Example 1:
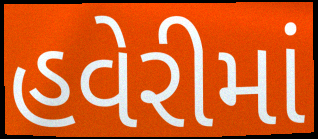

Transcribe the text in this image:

હવેરીમાં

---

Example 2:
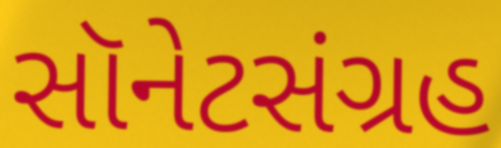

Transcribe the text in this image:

સૉનેટસંગ્રહ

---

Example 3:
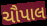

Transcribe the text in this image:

ચૌપાલ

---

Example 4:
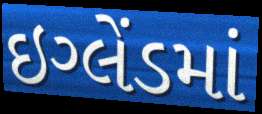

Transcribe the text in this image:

ઇગ્લેંડમાં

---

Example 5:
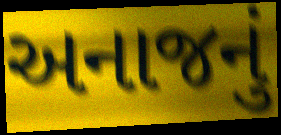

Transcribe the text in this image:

અનાજનું